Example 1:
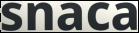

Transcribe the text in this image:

snaca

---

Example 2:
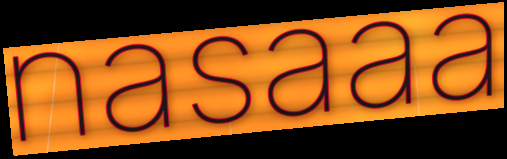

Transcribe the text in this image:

nasaaa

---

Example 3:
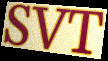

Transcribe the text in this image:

SVT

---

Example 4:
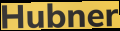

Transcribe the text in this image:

Hubner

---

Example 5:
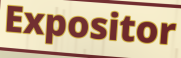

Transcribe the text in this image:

Expositor